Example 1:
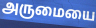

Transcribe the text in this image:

அருமையை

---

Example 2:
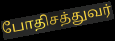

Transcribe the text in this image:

போதிசத்துவர்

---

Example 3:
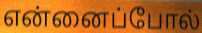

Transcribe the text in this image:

என்னைப்போல்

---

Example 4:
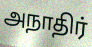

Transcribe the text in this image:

அநாதிர்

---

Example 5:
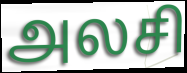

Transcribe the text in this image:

அலசி